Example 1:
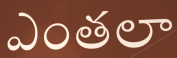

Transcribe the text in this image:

ఎంతలా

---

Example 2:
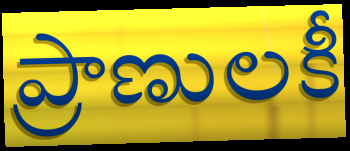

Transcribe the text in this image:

ప్రాణులకీ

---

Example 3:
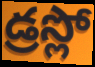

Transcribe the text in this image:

డ్రస్లో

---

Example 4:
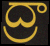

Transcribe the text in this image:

ద్రా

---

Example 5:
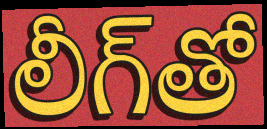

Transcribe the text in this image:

లీగ్‌తో